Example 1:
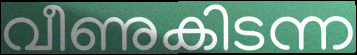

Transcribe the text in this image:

വീണുകിടന്ന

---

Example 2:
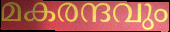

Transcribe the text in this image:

മകരന്ദവും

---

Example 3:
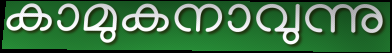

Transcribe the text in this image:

കാമുകനാവുന്നു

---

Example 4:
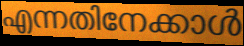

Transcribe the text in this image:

എന്നതിനേക്കാൾ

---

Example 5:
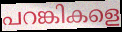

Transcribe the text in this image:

പറങ്കികളെ